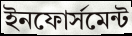
ইনফোর্সমেন্ট